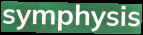
symphysis